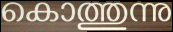
കൊത്തുന്നു